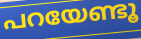
പറയേണ്ടൂ